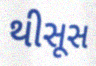
થીસૂસ